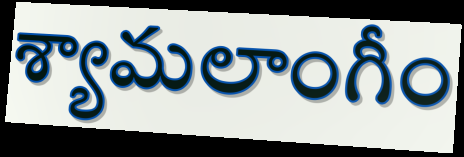
శ్యామలాంగీం